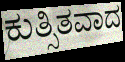
ಕುತ್ಸಿತವಾದ